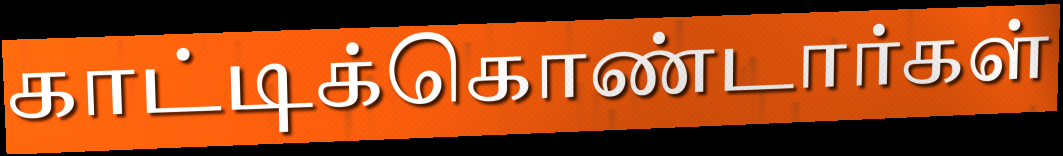
காட்டிக்கொண்டார்கள்